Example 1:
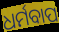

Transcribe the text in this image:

ଧର୍ମବାପ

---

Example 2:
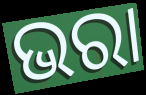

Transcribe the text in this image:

ଭରା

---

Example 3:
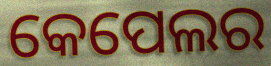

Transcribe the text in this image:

କେପେଲର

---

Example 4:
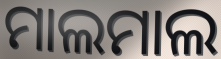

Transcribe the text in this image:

ମାଲମାଲ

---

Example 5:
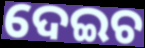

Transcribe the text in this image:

ଦେଇଚ